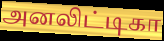
அனலிட்டிகா